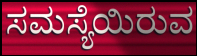
ಸಮಸ್ಯೆಯಿರುವ